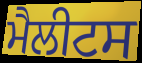
ਮੈਲੀਟਸ